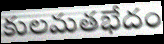
కులమతభేదం